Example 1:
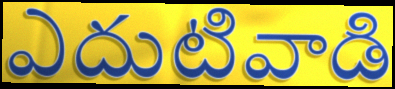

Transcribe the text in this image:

ఎదుటివాడి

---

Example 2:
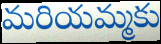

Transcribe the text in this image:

మరియమ్మకు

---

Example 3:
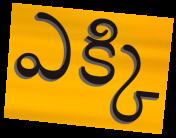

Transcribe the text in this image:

ఎక్కి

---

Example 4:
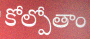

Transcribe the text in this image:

కోల్పోతాం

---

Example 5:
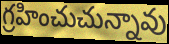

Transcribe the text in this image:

గ్రహించుచున్నావు